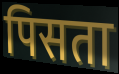
पिसता